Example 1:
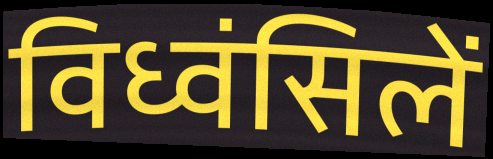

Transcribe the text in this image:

विध्वंसिलें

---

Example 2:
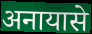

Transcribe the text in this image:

अनायासे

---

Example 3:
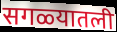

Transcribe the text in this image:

सगळ्यातली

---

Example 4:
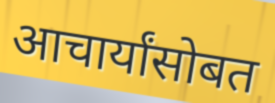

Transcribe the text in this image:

आचार्यांसोबत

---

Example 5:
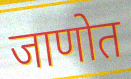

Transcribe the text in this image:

जाणोत